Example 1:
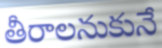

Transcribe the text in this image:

తీరాలనుకునే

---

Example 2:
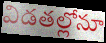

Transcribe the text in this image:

విడతల్లోనూ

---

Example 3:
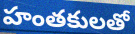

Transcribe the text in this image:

హంతకులతో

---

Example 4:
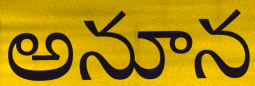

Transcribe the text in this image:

అనూన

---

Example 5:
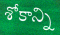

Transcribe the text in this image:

శోకాన్ని